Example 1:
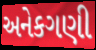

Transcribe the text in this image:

અનેકગણી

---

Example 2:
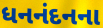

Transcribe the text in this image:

ધનનંદનના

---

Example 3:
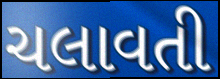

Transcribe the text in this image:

ચલાવતી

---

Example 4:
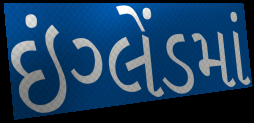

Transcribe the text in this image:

ઇંગ્લેંડમાં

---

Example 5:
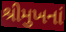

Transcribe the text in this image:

શ્રીમુખનાં